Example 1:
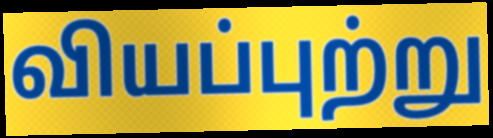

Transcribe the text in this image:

வியப்புற்று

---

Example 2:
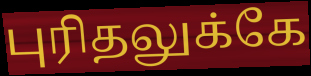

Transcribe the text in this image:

புரிதலுக்கே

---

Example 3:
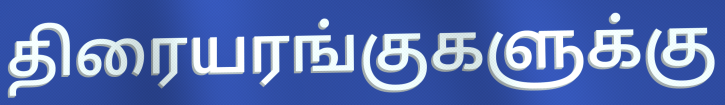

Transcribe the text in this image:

திரையரங்குகளுக்கு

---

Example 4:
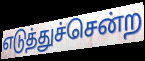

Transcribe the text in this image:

எடுத்துச்சென்ற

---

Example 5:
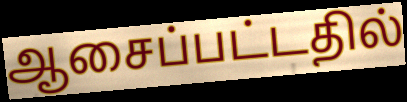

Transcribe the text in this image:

ஆசைப்பட்டதில்